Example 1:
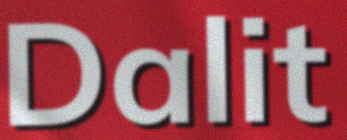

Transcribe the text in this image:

Dalit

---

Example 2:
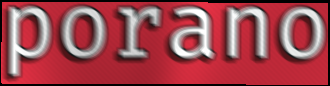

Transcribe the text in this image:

porano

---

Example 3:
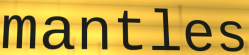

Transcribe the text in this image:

mantles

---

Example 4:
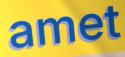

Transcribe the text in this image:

amet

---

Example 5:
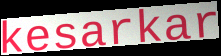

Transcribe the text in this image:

kesarkar